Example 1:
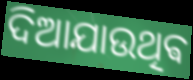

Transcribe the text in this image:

ଦିଆଯାଉଥିଵ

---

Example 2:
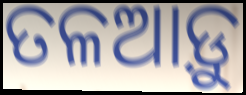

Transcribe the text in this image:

ତଳଆଡ଼ୁ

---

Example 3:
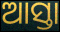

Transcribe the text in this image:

ଆସ୍ତା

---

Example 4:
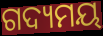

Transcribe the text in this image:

ଗଦ୍ୟମୟ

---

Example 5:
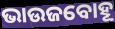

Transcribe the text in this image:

ଭାଉଜବୋହୂ